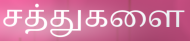
சத்துகளை